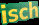
isch